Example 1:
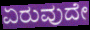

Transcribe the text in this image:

ಏರುವುದೇ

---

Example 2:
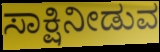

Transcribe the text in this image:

ಸಾಕ್ಷಿನೀಡುವ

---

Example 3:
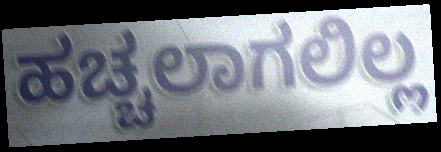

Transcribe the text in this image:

ಹಚ್ಚಲಾಗಲಿಲ್ಲ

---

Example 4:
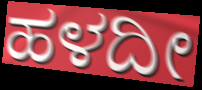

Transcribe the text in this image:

ಹಳದೀ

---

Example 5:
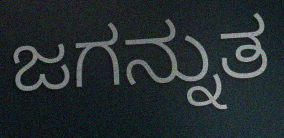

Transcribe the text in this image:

ಜಗನ್ನುತ